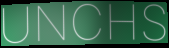
UNCHS